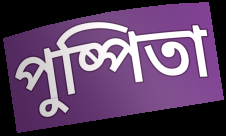
পুষ্পিতা